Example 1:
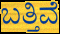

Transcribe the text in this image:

ಬತ್ತಿವೆ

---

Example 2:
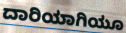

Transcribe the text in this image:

ದಾರಿಯಾಗಿಯೂ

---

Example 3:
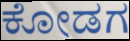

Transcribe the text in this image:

ಕೋಡಗ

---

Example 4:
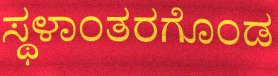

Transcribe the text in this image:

ಸ್ಥಳಾಂತರಗೊಂಡ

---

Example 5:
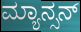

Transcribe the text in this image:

ಮ್ಯಾನ್ಸನ್